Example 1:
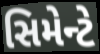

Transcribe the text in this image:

સિમેન્ટે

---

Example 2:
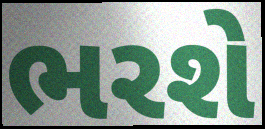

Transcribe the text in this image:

ભરશે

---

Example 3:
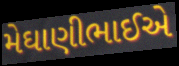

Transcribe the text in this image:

મેઘાણીભાઈએ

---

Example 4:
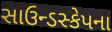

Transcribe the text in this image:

સાઉન્ડસ્કેપના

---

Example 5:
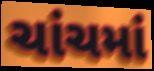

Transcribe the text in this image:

ચાંચમાં